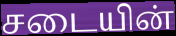
சடையின்